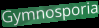
Gymnosporia